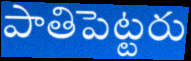
పాతిపెట్టరు